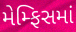
મેમ્ફિસમાં